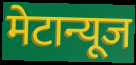
मेटान्यूज